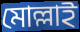
মোল্লাই